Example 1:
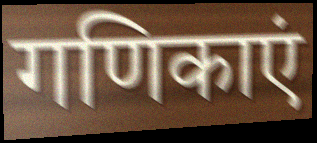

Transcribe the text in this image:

गणिकाएं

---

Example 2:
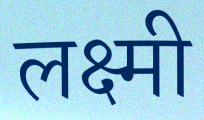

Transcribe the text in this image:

लक्ष्मी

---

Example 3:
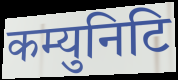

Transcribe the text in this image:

कम्युनिटि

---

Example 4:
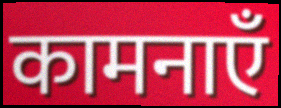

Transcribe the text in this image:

कामनाएँ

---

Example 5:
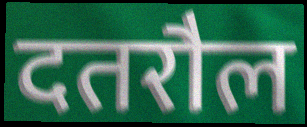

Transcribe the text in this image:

दतरौल